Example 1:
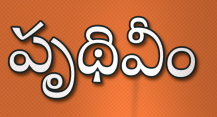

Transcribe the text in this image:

పృథివీం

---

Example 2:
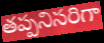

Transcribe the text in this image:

తప్పనిసరిగా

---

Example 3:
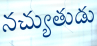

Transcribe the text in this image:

నచ్యుతుడు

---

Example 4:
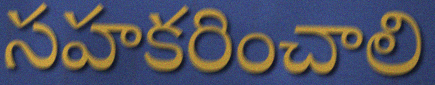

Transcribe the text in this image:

సహకరించాలి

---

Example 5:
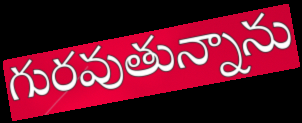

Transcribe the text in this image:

గురవుతున్నాను